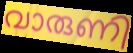
വാരുണി